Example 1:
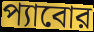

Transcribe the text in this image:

প্যাবোর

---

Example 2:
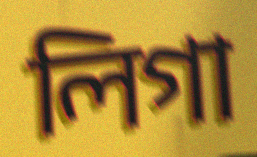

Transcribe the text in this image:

লিগা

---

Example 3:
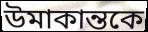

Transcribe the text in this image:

উমাকান্তকে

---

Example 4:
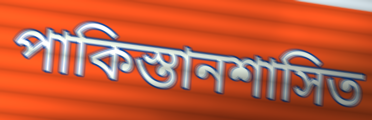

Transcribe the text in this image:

পাকিস্তানশাসিত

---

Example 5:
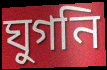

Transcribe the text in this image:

ঘুগনি